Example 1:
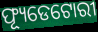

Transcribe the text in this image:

ଫ୍ୟୂଡେଟୋରୀ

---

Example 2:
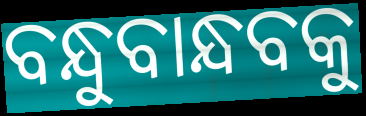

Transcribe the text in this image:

ବନ୍ଧୁବାନ୍ଧବକୁ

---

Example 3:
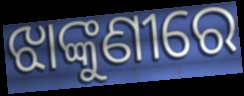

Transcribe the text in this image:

ଝାଙ୍କୁଣୀରେ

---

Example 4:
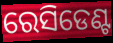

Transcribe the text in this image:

ରେସିଡେଣ୍ଟ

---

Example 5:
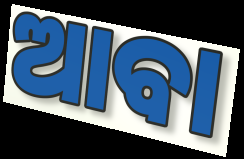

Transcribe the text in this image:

ଆବା